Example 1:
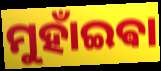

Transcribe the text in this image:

ମୁହାଁଇଵା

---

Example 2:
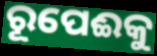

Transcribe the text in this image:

ରୂପେଈକୁ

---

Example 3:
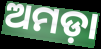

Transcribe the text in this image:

ଅମଡ଼ା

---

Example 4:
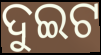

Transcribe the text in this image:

ଦୁଇଟ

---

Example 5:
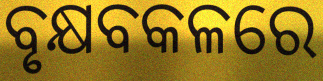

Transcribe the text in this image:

ବୃକ୍ଷବକଳରେ